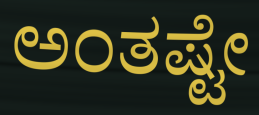
ಅಂತಷ್ಟೇ